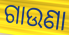
ଗାଉଣା